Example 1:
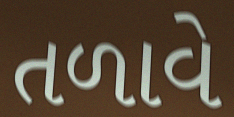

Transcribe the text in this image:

તળાવે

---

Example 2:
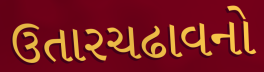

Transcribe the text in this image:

ઉતારચઢાવનો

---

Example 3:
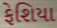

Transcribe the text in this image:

ફેશિયા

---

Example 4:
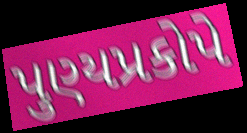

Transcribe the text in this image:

પુણ્યપ્રકોપે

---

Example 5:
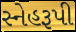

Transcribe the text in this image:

સ્નેહરૂપી